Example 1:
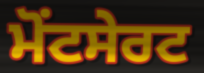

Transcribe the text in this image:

ਮੋਂਟਸੇਰਟ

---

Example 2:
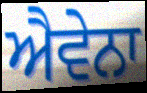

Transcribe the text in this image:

ਐਵੇਨਾ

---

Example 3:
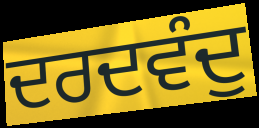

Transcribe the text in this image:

ਦਰਦਵੰਦੁ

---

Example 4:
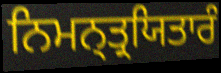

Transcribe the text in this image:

ਨਿਮਨ੍ਤ੍ਰਯਿਤਾਰੰ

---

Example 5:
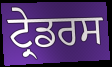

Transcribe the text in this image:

ਟ੍ਰੇਡਰਸ